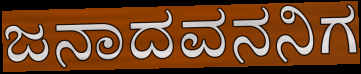
ಜನಾದವನನಿಗ